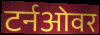
टर्नओवर